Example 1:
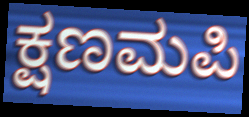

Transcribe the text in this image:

ಕ್ಷಣಮಪಿ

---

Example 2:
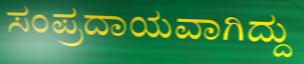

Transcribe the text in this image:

ಸಂಪ್ರದಾಯವಾಗಿದ್ದು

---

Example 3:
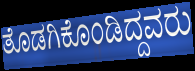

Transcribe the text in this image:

ತೊಡಗಿಕೊಂಡಿದ್ದವರು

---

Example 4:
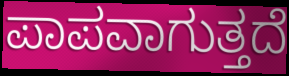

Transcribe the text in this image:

ಪಾಪವಾಗುತ್ತದೆ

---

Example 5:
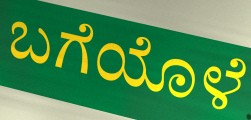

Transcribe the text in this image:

ಬಗೆಯೊಳೆ